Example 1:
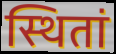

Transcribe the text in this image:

स्थितां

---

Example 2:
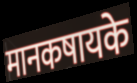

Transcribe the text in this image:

मानकषायके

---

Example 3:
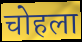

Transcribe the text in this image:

चोहला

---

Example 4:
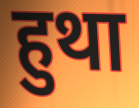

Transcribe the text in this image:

हुथा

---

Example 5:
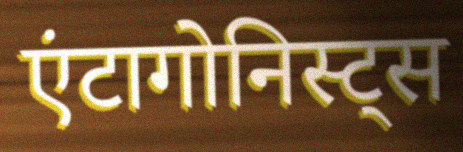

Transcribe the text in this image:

एंटागोनिस्ट्स